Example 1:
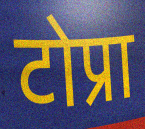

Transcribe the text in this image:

टोप्रा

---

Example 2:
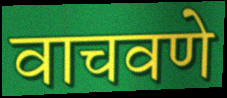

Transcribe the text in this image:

वाचवणे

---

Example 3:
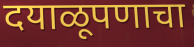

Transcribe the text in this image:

दयाळूपणाचा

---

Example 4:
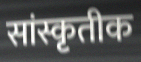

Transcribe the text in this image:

सांस्कृतीक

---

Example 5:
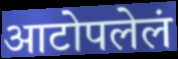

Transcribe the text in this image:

आटोपलेलं